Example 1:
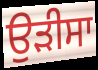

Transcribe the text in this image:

ਉਡ਼ੀਸਾ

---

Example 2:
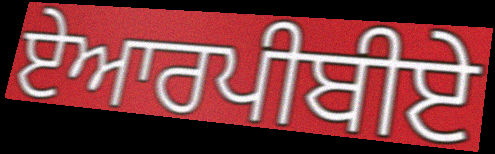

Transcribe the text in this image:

ਏਆਰਪੀਬੀਏ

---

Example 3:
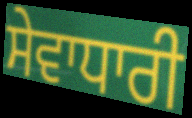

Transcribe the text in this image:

ਸੇਵਾਧਾਰੀ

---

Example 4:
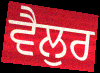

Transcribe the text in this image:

ਵੈਲੁਰ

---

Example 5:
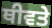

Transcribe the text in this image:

ਥੀਵਤੇ